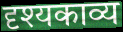
दृश्यकाव्य